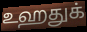
உஹதுக்